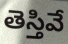
తెస్తివే